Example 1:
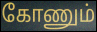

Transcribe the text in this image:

கோணும்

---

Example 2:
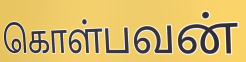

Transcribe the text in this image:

கொள்பவன்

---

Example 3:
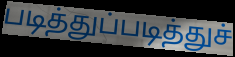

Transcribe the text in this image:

படித்துப்படித்துச்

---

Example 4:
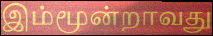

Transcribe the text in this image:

இம்மூன்றாவது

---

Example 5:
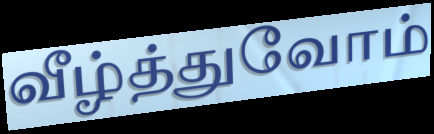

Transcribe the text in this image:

வீழ்த்துவோம்